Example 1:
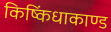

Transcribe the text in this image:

किष्किंधाकाण्ड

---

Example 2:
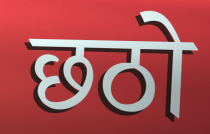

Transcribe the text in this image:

छठो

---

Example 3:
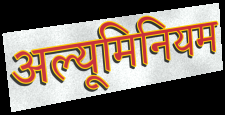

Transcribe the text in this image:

अल्यूमिनियम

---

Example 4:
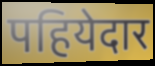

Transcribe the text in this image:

पहियेदार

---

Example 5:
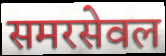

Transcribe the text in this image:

समरसेवल